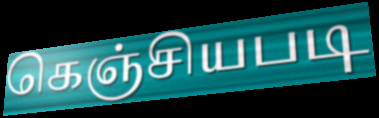
கெஞ்சியபடி